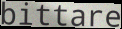
bittare